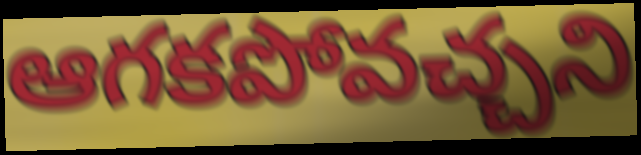
ఆగకపోవచ్చని